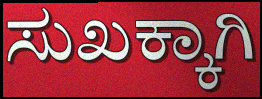
ಸುಖಕ್ಕಾಗಿ